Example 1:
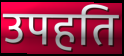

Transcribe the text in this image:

उपहति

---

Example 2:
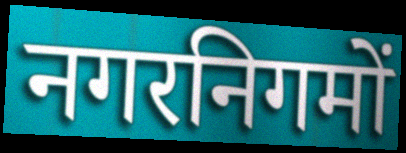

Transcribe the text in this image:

नगरनिगमों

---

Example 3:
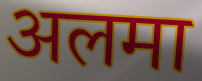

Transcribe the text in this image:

अलमा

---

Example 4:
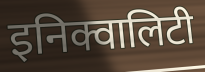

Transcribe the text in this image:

इनिक्वालिटी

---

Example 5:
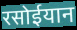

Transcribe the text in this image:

रसोईयान